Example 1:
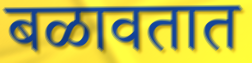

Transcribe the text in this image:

बळावतात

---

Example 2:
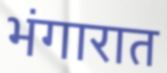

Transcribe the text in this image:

भंगारात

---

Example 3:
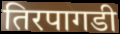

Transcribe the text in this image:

तिरपागडी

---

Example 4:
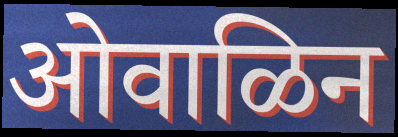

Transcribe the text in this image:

ओवाळिन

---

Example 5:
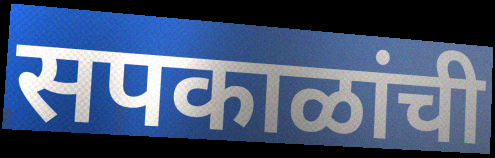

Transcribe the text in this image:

सपकाळांची